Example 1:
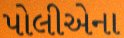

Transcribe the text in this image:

પોલીએના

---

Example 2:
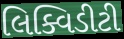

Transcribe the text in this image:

લિક્વિડીટી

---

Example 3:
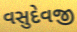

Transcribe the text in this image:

વસુદેવજી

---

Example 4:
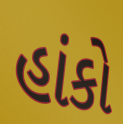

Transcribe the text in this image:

હાંકો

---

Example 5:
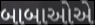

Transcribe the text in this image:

બાબાઓએ